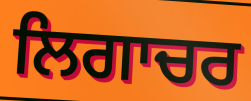
ਲਿਗਾਚਰ